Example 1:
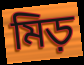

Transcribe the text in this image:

মিড়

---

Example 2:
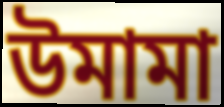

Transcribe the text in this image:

উমামা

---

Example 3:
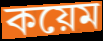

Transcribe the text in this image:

কয়েম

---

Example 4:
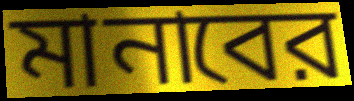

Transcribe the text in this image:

মানাবের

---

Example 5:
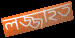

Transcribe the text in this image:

লজ্জাহত